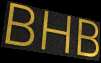
BHB